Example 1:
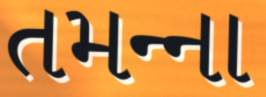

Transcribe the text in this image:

તમન્‍ના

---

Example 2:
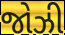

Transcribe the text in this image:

જોઝી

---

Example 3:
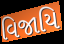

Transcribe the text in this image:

વિજાયિ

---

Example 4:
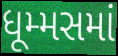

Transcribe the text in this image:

ધૂમ્મસમાં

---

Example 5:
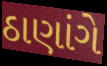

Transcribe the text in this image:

ઠાણાંગે